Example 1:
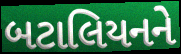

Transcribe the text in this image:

બટાલિયનને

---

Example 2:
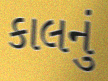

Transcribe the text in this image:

કાલનું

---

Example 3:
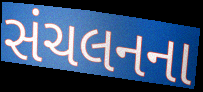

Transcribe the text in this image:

સંચલનના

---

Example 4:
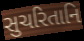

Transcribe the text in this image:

સુચરિતાનિ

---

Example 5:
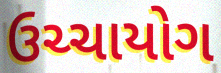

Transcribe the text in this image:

ઉચ્ચાયોગ